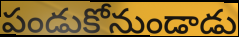
పండుకోనుండాడు